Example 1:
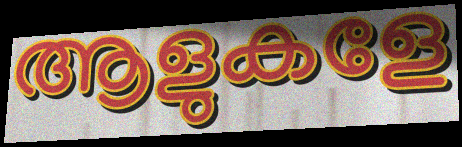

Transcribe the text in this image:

ആളുകളേ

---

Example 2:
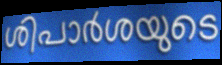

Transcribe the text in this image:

ശിപാർശയുടെ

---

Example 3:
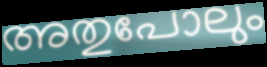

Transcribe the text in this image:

അതുപോലും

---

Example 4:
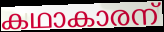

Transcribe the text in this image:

കഥാകാരന്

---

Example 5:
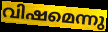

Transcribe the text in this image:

വിഷമെന്നു